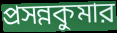
প্রসন্নকুমার